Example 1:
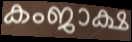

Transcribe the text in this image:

കംജാക്ഷ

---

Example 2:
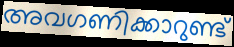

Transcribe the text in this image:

അവഗണിക്കാറുണ്ട്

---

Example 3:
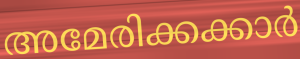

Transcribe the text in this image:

അമേരിക്കക്കാർ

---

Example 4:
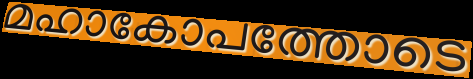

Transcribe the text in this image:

മഹാകോപത്തോടെ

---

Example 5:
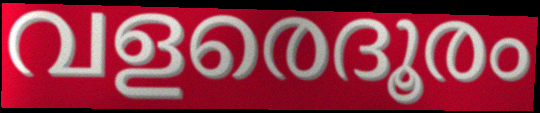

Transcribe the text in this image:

വളരെദൂരം